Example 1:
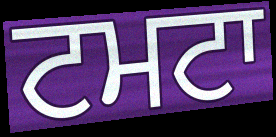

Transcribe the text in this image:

ਟਮਟਾ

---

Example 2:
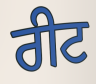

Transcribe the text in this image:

ਰੀਟ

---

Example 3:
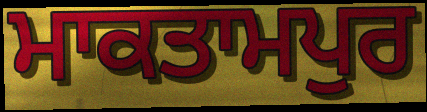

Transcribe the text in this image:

ਮਾਕਤਾਮਪੁਰ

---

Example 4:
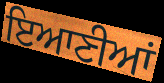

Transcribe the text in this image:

ਇਆਣੀਆਂ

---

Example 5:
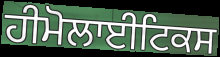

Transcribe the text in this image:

ਹੀਮੋਲਾਈਟਿਕਸ